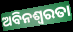
ଅବିନଶ୍ୱରତା